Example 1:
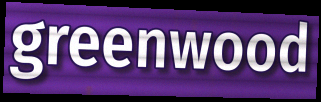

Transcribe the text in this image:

greenwood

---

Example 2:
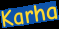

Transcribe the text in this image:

Karha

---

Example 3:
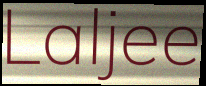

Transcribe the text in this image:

Laljee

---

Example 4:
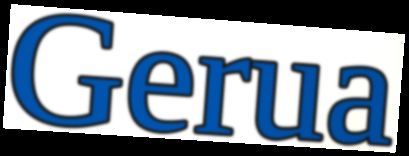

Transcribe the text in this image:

Gerua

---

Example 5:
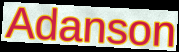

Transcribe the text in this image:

Adanson